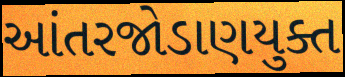
આંતરજોડાણયુક્ત